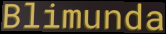
Blimunda